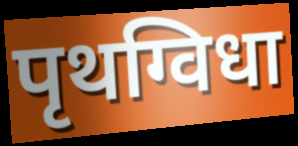
पृथग्विधा